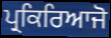
ਪ੍ਰਕਿਰਿਆਜੋ